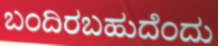
ಬಂದಿರಬಹುದೆಂದು